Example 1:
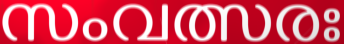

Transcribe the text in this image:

സംവത്സരഃ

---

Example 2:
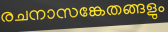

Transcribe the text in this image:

രചനാസങ്കേതങ്ങളും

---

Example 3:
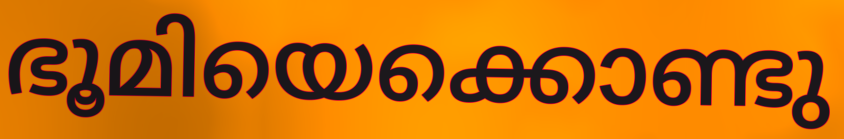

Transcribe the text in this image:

ഭൂമിയെക്കൊണ്ടു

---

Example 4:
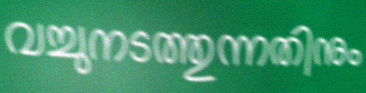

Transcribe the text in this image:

വച്ചുനടത്തുന്നതിനും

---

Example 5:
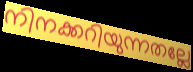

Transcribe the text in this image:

നിനക്കറിയുന്നതല്ലേ